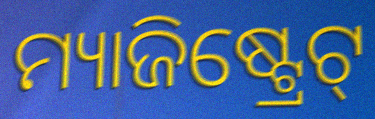
ମ୍ୟାଜିଷ୍ଟ୍ରେଟ୍